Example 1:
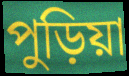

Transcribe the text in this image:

পুড়িয়া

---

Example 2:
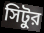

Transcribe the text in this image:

সিটুর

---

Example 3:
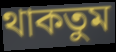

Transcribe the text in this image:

থাকতুম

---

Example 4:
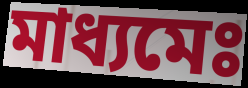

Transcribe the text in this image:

মাধ্যমেঃ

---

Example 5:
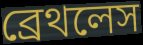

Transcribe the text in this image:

ব্রেথলেস